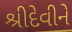
શ્રીદેવીને